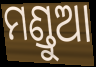
ମଣ୍ଡୁଆ